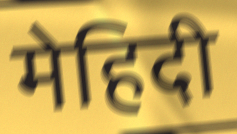
मेहिदी